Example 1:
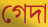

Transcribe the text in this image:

গেদা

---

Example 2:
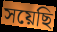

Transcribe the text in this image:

সয়েছি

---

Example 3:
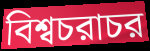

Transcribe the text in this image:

বিশ্বচরাচর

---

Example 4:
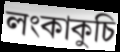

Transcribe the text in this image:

লংকাকুচি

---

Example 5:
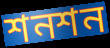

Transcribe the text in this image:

শনশন